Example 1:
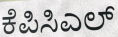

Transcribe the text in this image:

ಕೆಪಿಸಿಎಲ್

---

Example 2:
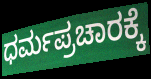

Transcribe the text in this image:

ಧರ್ಮಪ್ರಚಾರಕ್ಕೆ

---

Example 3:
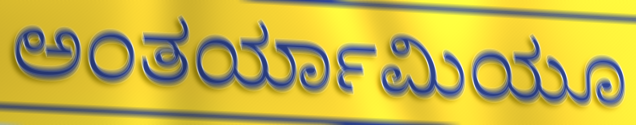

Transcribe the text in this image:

ಅಂತರ್ಯಾಮಿಯೂ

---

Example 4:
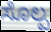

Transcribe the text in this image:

ಸೊಲ್ಪ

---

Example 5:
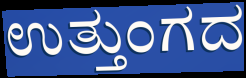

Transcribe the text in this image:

ಉತ್ತುಂಗದ